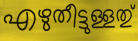
എഴുതീട്ടുള്ളതു്